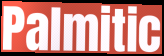
Palmitic